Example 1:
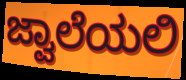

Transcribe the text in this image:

ಜ್ವಾಲೆಯಲಿ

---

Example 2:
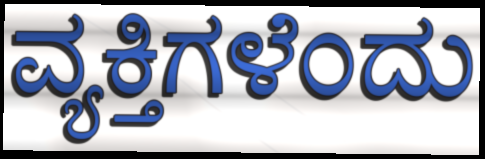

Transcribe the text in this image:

ವ್ಯಕ್ತಿಗಳೆಂದು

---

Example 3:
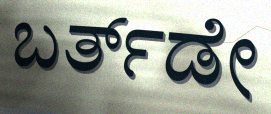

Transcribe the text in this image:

ಬರ್ತ್‌ಡೇ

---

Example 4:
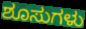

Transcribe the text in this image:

ಶೂಸುಗಳು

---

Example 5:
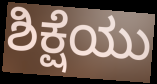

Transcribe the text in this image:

ಶಿಕ್ಷೆಯು